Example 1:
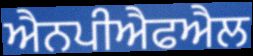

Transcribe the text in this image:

ਐਨਪੀਐਫਐਲ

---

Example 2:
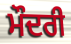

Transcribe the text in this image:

ਮੌਦਰੀ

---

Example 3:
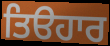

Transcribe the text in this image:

ਤਿੳਹਾਰ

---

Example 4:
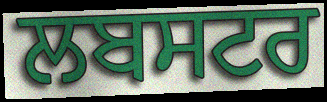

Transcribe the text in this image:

ਲਬਸਟਰ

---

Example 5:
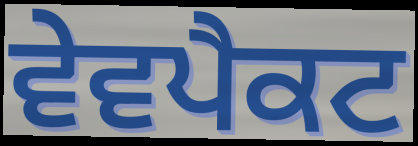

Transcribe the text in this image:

ਵੇਵਪੈਕਟ